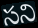
సని